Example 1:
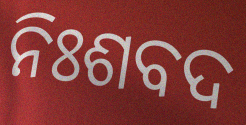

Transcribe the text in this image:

ନିଃଶବଦ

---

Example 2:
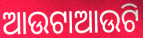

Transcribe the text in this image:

ଆଉଟାଆଉଟି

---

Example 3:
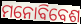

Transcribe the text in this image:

ମନୋବିବେଶ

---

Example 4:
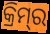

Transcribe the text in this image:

କ୍ରିମ୍‌ର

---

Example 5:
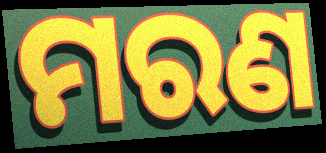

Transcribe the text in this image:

ମରଣ